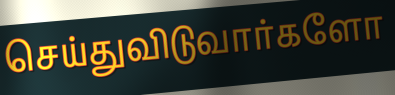
செய்துவிடுவார்களோ